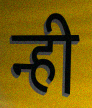
न्ही